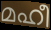
മഹീ